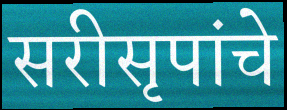
सरीसृपांचे